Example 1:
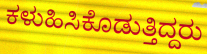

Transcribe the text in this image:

ಕಳುಹಿಸಿಕೊಡುತ್ತಿದ್ದರು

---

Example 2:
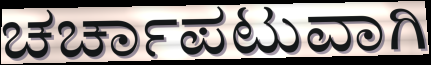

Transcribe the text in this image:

ಚರ್ಚಾಪಟುವಾಗಿ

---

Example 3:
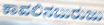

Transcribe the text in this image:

ಕಾವಲಿನಬುರುಜು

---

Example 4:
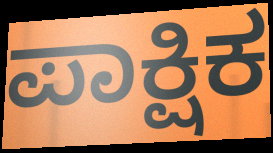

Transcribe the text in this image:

ಪಾಕ್ಷಿಕ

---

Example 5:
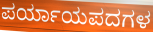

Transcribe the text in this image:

ಪರ್ಯಾಯಪದಗಳ